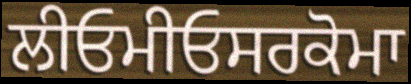
ਲੀਓਮੀਓਸਰਕੋਮਾ